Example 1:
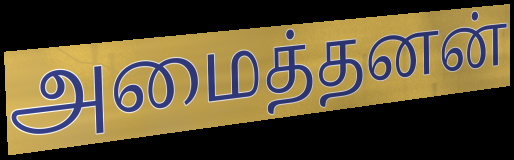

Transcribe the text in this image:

அமைத்தனன்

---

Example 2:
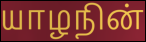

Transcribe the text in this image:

யாழநின்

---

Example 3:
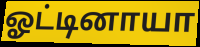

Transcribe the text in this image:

ஓட்டினாயா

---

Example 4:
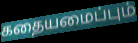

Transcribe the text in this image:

கதையமைப்பும்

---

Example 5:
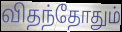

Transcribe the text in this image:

விதந்தோதும்